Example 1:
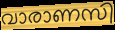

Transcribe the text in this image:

വാരാണസി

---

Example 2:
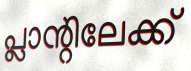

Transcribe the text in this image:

പ്ലാന്റിലേക്ക്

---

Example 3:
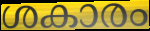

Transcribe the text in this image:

ശകാരം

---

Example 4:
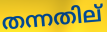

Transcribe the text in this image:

തന്നതില്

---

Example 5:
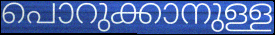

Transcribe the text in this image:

പൊറുക്കാനുള്ള